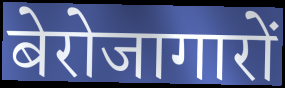
बेरोजागारों